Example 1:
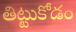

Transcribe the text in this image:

తిట్టుకోడం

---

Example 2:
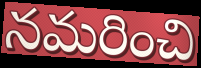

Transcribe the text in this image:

నమరించి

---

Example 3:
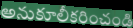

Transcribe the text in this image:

అనుకూలీకరించండి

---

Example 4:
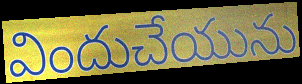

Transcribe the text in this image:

విందుచేయును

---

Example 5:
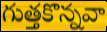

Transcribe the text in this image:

గుత్తకొన్నవా